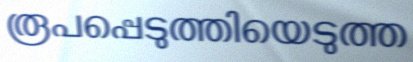
രൂപപ്പെടുത്തിയെടുത്ത